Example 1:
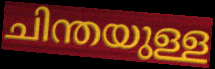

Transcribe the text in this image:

ചിന്തയുള്ള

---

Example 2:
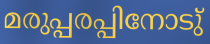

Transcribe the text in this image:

മരുപ്പരപ്പിനോടു്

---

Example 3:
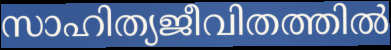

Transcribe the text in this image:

സാഹിത്യജീവിതത്തിൽ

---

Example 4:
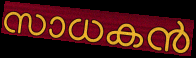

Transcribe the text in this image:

സാധകൻ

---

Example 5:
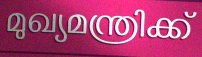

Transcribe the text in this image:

മുഖ്യമന്ത്രിക്ക്